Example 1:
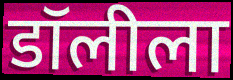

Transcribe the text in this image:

डॉलीला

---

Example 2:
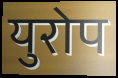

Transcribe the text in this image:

युरोप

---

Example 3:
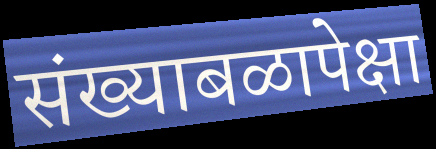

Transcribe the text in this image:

संख्याबळापेक्षा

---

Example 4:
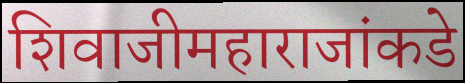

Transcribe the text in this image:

शिवाजीमहाराजांकडे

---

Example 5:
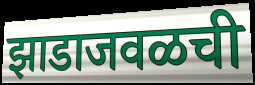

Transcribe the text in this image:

झाडाजवळची